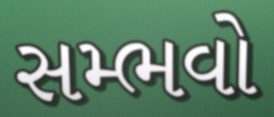
સમ્ભવો